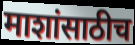
माशांसाठीच